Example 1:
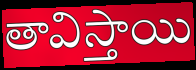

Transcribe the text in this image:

తావిస్తాయి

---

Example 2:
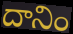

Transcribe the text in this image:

దానిం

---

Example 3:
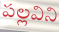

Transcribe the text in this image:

పల్లవిని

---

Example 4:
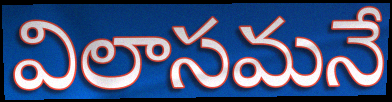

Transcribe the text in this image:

విలాసమనే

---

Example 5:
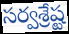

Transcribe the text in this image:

సర్వశ్రేష్ట